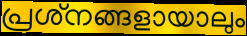
പ്രശ്‌നങ്ങളായാലും